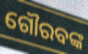
ଗୌରବଙ୍କ